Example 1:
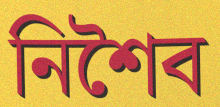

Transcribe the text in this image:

নিশৈব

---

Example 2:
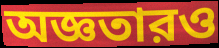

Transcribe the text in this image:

অজ্ঞতারও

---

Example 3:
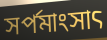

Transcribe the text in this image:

সর্পমাংসাৎ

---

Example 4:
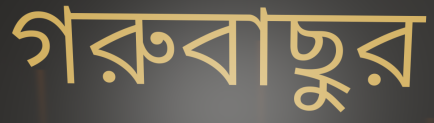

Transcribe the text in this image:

গরুবাছুর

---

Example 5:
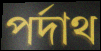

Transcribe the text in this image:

পর্দাথ